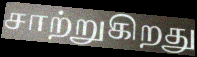
சாற்றுகிறது